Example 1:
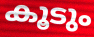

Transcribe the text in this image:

കൂടും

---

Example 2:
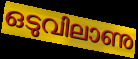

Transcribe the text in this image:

ഒടുവിലാണു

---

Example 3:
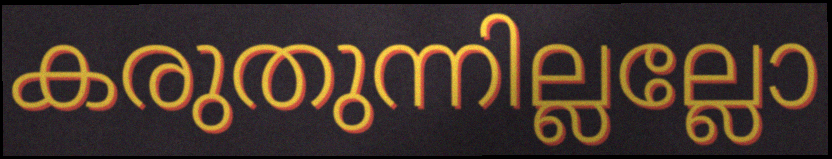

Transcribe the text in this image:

കരുതുന്നില്ലല്ലോ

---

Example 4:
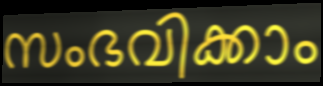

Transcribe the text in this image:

സംഭവിക്കാം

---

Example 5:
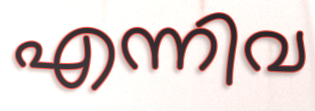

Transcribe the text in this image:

എന്നിവ